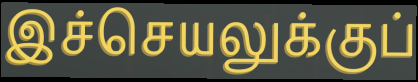
இச்செயலுக்குப்